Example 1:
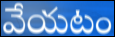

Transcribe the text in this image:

వేయటం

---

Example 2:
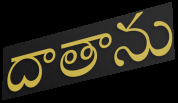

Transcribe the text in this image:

దాతాను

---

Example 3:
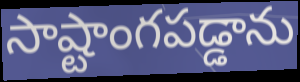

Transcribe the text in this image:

సాష్టాంగపడ్డాను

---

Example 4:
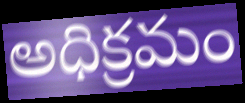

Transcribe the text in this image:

అధిక్రమం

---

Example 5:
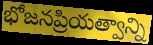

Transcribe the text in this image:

భోజనప్రియత్వాన్ని